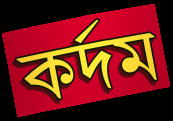
কর্দম